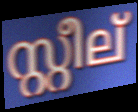
സ്റ്റീല്